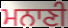
ਮਨਾਣੀ